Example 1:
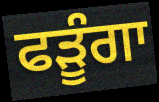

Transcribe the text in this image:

ਫੜੂੰਗਾ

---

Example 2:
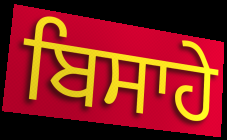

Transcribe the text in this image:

ਬਿਸਾਹੇ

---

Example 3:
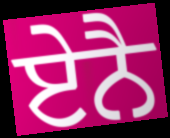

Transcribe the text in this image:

ਏਨੈ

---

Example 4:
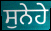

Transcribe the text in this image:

ਸੁਨੇਹੇ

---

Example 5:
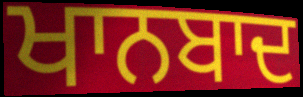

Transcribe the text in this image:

ਖਾਨਬਾਦ